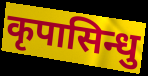
कृपासिन्धु